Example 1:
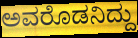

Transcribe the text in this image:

ಅವರೊಡನಿದ್ದು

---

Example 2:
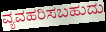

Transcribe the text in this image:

ವ್ಯವಹರಿಸಬಹುದು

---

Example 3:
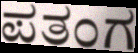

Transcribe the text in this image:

ಪತಂಗ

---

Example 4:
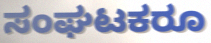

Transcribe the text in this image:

ಸಂಘಟಕರೂ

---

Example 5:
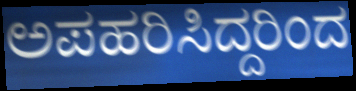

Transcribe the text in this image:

ಅಪಹರಿಸಿದ್ದರಿಂದ